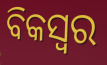
ବିକସ୍ୱର